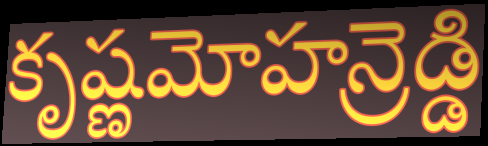
కృష్ణమోహన్రెడ్డి